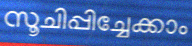
സൂചിപ്പിച്ചേക്കാം